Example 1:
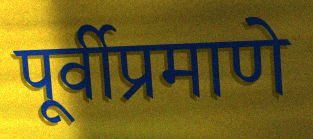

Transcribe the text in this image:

पूर्वीप्रमाणे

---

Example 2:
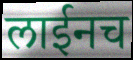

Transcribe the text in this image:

लाईनच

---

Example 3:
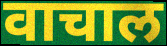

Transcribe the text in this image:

वाचाल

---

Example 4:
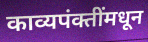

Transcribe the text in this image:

काव्यपंक्तींमधून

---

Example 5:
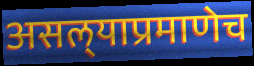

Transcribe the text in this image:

असल्याप्रमाणेच